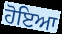
ਹੋਇਆ